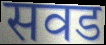
सवड